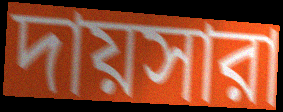
দায়সারা